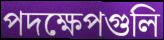
পদক্ষেপগুলি